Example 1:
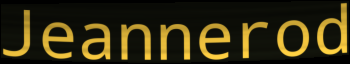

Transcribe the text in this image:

Jeannerod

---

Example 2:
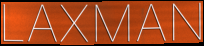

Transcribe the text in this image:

LAXMAN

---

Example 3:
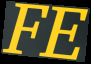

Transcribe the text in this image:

FE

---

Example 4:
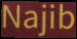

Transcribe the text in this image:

Najib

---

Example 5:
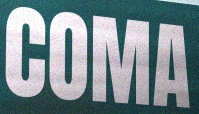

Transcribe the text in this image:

COMA